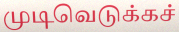
முடிவெடுக்கச்